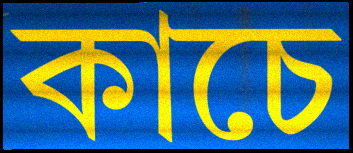
কাচে